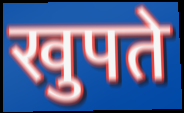
खुपते